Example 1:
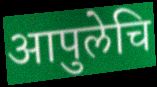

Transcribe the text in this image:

आपुलेचि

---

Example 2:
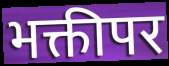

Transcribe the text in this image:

भक्तीपर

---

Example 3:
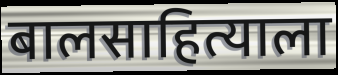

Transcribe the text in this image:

बालसाहित्याला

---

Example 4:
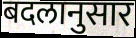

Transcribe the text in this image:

बदलानुसार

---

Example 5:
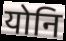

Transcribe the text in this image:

योनि